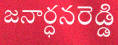
జనార్ధనరెడ్డి